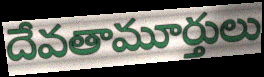
దేవతామూర్తులు